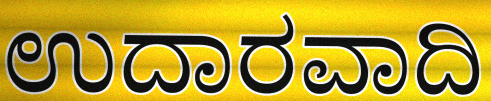
ಉದಾರವಾದಿ